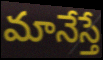
మానేస్తే